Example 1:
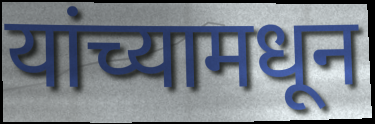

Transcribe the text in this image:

यांच्यामधून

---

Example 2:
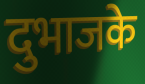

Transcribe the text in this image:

दुभाजके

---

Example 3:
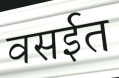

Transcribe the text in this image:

वसईत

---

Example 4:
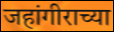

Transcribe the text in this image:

जहांगीराच्या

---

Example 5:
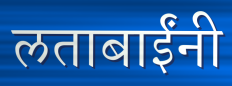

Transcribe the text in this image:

लताबाईंनी